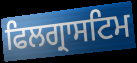
ਫਿਲਗ੍ਰਾਸਟਿਮ